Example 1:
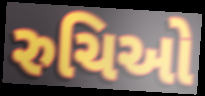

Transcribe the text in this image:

રુચિઓ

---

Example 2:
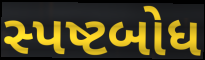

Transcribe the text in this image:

સ્પષ્ટબોધ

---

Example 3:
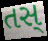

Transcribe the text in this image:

તસ્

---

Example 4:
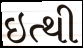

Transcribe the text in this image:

ઇત્થી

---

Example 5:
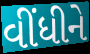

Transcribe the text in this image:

વીંધીને